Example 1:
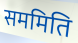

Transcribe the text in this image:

सममिति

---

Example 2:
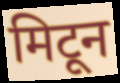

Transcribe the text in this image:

मिटून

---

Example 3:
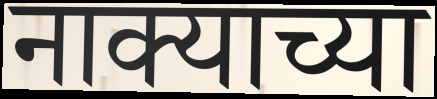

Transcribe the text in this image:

नाक्याच्या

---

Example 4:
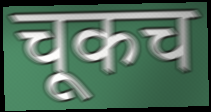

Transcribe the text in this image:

चूकच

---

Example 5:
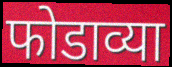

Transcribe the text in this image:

फोडाव्या